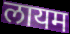
लायम